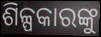
ଶିଳ୍ପକାରଙ୍କୁ